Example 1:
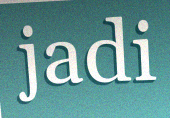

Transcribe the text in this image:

jadi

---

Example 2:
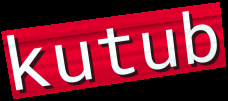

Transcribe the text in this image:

kutub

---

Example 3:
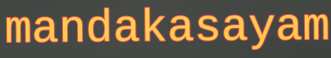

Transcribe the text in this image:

mandakasayam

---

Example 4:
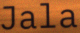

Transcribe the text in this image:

Jala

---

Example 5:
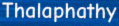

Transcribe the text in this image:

Thalaphathy